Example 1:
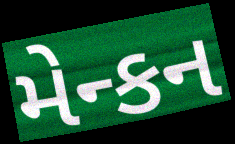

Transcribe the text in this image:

મેન્કન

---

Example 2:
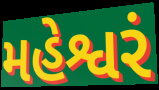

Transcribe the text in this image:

મહેશ્વરં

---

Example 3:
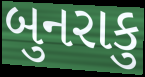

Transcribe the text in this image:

બુનરાકુ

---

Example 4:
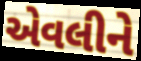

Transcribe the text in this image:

એવલીને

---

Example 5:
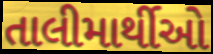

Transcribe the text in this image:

તાલીમાર્થીઓ